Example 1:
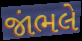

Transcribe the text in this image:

જાંભલે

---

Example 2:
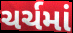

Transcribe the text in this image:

ચર્ચમાં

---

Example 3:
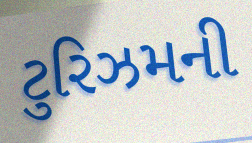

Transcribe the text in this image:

ટુરિઝમની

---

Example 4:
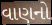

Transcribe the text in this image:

વાણનો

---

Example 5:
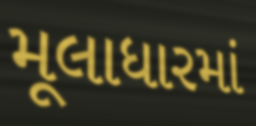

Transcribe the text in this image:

મૂલાધારમાં